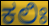
ಕಲಿಃ